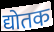
द्योतक